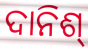
ଦାନିଶ୍